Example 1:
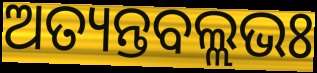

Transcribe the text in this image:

ଅତ୍ୟନ୍ତବଲ୍ଲଭଃ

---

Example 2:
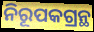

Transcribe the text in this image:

ନିରୂପକଗ୍ରନ୍ଥ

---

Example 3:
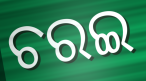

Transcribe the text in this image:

ଚରଇ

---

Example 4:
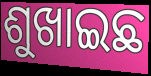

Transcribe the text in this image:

ଶୁଖାଇଛ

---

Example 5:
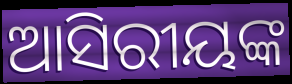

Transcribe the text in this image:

ଆସିରୀୟଙ୍କ